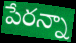
పేరన్నా